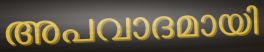
അപവാദമായി